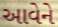
આવેને